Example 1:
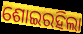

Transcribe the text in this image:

ଶୋଇରହିଲା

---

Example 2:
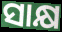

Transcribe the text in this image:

ସାକ୍ଷ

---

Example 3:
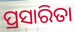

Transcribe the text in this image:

ପ୍ରସାରିତା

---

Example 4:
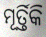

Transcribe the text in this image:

ମୂର୍ତ୍ତିକି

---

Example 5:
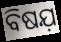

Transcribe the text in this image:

ବିଷଯ଼